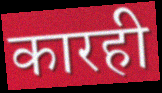
कारही